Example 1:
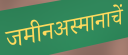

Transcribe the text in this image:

जमीनअस्मानाचें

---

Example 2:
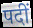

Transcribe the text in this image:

पदीं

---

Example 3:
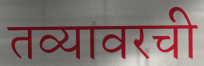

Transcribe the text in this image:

तव्यावरची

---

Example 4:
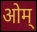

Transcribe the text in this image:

ओम्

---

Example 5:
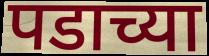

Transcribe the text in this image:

पडाच्या